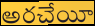
అరచేయీ